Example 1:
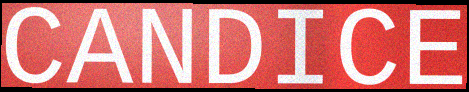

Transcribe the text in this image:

CANDICE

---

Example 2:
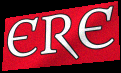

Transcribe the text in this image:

ERE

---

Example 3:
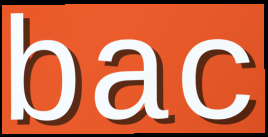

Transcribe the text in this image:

bac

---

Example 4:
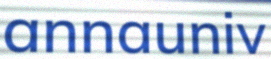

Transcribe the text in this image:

annauniv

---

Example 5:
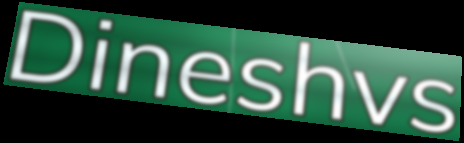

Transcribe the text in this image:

Dineshvs